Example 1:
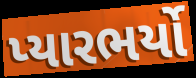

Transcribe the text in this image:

પ્યારભર્યો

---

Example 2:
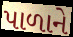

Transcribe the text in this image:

પાળાને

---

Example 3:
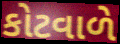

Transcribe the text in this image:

કોટવાળે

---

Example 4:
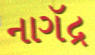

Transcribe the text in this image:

નાગૅદ્ર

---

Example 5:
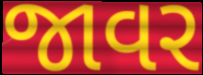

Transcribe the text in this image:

જાવર